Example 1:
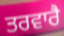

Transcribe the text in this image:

ਤਰਵਾਰੈ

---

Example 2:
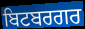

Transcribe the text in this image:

ਬਿਟਬਰਗਰ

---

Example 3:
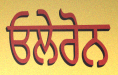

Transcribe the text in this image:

ਓਲੇਰੋਨ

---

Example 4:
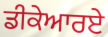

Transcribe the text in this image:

ਡੀਕੇਆਰਏ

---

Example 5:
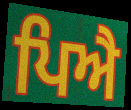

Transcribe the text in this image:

ਪਿਐ